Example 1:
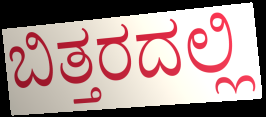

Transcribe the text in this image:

ಬಿತ್ತರದಲ್ಲಿ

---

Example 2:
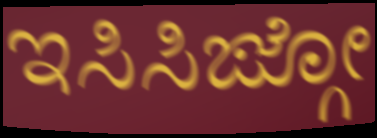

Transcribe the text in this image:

ಇಸಿಸಿಙ್ಗೋ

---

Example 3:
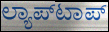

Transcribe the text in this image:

ಲ್ಯಾಪ್‌ಟಾಪ್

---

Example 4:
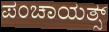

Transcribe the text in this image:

ಪಂಚಾಯತ್ಸ್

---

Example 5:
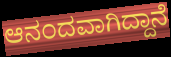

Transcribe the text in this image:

ಆನಂದವಾಗಿದ್ದಾನೆ